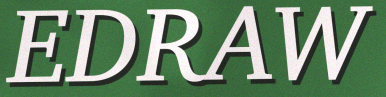
EDRAW